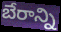
బేరాన్ని